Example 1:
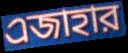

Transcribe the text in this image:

এজাহার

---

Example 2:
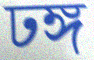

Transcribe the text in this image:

ঢঙ্গ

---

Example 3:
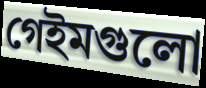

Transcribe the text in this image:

গেইমগুলো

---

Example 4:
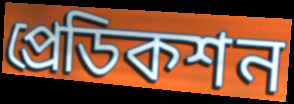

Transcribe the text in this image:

প্রেডিকশন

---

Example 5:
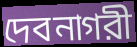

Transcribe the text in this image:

দেবনাগরী